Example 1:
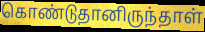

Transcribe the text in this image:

கொண்டுதானிருந்தாள்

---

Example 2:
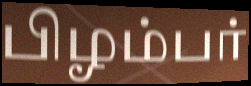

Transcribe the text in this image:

பிழம்பர்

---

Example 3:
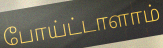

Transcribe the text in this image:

போய்ட்டாளாம்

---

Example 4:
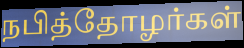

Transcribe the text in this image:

நபித்தோழர்கள்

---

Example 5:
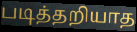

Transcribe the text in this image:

படித்தறியாத